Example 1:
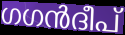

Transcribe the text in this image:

ഗഗൻദീപ്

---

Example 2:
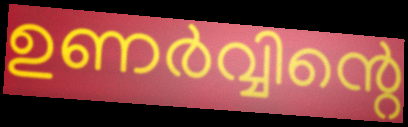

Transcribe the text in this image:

ഉണർവ്വിന്റെ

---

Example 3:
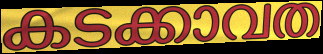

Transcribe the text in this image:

കടക്കാവത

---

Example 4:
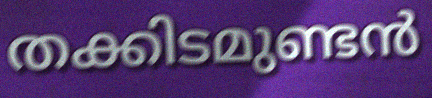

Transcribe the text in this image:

തക്കിടമുണ്ടൻ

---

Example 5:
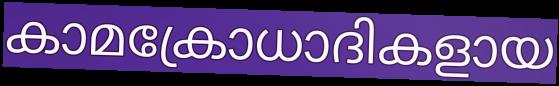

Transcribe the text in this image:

കാമക്രോധാദികളായ